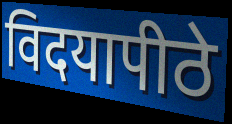
विदयापीठे